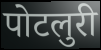
पोटलुरी